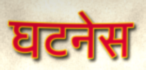
घटनेस